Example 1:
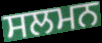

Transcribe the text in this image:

ਸਲਮਨ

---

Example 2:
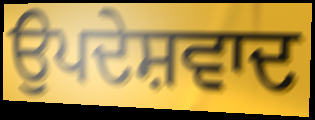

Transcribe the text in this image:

ਉਪਦੇਸ਼ਵਾਦ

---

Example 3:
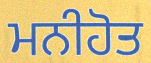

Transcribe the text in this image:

ਮਨੀਹੋਤ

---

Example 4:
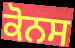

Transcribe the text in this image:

ਕੋਨਸ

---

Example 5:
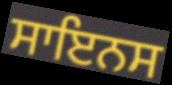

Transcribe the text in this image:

ਸਾਇਨਸ